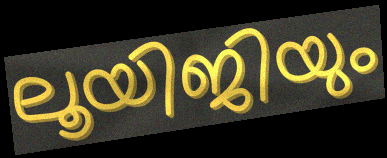
ലൂയിജിയും